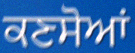
ਕਣਸੋਆਂ